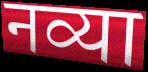
नव्या